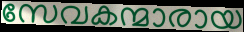
സേവകന്മാരായ